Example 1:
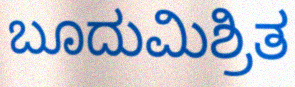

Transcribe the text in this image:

ಬೂದುಮಿಶ್ರಿತ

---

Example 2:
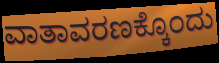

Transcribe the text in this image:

ವಾತಾವರಣಕ್ಕೊಂದು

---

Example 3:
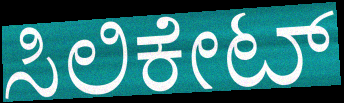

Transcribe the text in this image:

ಸಿಲಿಕೇಟ್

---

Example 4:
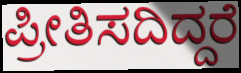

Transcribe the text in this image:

ಪ್ರೀತಿಸದಿದ್ದರೆ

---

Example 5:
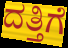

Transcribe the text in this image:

ದತ್ತಿಗೆ